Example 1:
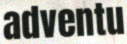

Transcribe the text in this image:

adventu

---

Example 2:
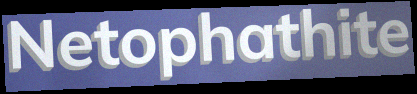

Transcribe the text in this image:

Netophathite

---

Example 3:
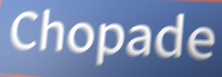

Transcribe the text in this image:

Chopade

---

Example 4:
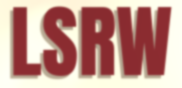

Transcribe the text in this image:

LSRW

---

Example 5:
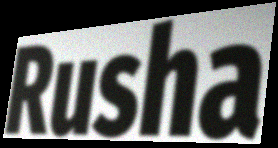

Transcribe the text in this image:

Rusha